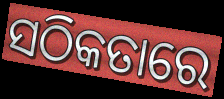
ସଠିକତାରେ